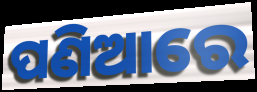
ପଣିଆରେ